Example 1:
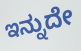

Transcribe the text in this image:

ಇನ್ನುದೇ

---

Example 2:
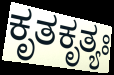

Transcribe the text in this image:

ಕೃತಕೃತ್ಯಃ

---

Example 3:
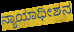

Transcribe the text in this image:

ನ್ಯಾಯಾಧೀಶನ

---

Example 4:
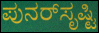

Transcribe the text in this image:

ಪುನರ್‌ಸೃಷ್ಟಿ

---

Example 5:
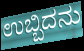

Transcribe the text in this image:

ಉಬ್ಬಿದನು